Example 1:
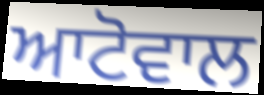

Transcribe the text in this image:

ਆਟੋਵਾਲ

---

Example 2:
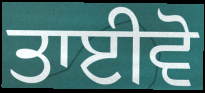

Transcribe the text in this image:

ਤਾਈਵੋ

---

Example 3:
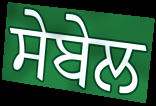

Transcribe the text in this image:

ਸੇਬੇਲ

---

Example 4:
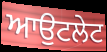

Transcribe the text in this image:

ਆਉਟਲੇਟ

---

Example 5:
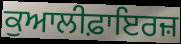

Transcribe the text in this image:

ਕੁਆਲੀਫ਼ਾਇਰਜ਼